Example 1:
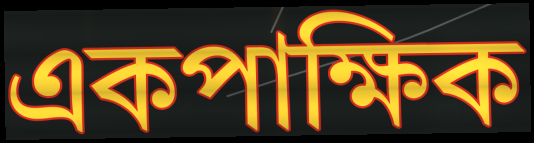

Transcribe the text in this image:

একপাক্ষিক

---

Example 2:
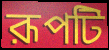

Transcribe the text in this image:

রূপটি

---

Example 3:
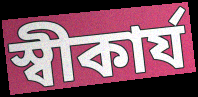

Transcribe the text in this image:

স্বীকার্য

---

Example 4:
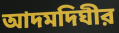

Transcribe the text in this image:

আদমদিঘীর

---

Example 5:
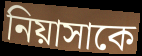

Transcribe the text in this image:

নিয়াসাকে